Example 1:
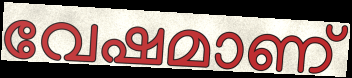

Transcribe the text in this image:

വേഷമാണ്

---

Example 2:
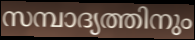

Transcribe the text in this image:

സമ്പാദ്യത്തിനും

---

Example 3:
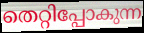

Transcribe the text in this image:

തെറ്റിപ്പോകുന്ന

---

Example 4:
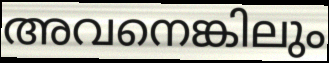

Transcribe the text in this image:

അവനെങ്കിലും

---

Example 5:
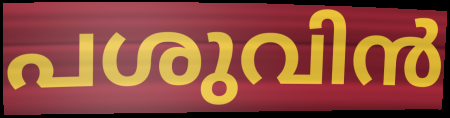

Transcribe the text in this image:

പശുവിൻ